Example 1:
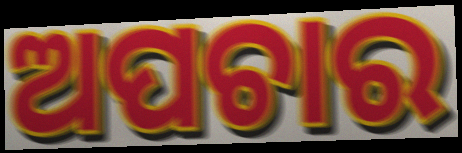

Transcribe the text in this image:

ଅପଚାର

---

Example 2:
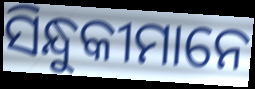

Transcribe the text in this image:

ସିନ୍ଧୁକୀମାନେ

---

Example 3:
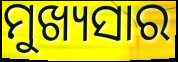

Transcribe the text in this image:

ମୁଖ୍ୟସାର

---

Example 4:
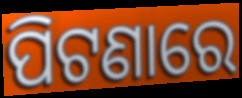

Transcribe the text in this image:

ପିଟଣାରେ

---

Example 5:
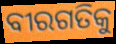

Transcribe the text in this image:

ବୀରଗତିକୁ